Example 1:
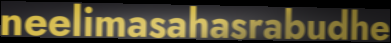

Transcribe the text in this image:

neelimasahasrabudhe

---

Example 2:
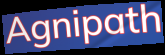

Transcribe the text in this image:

Agnipath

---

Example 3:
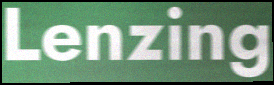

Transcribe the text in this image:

Lenzing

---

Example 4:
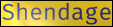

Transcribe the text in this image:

Shendage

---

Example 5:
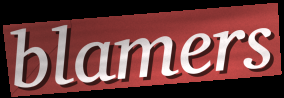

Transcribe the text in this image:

blamers